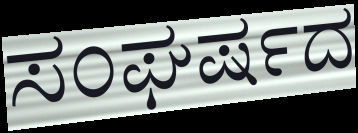
ಸಂಘರ್ಷದ